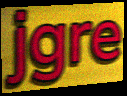
jgre